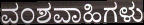
ವಂಶವಾಹಿಗಳು